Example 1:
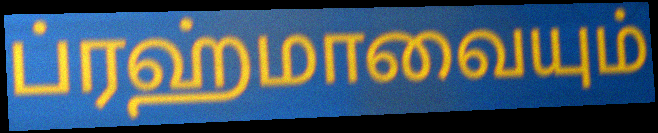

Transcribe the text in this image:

ப்ரஹ்மாவையும்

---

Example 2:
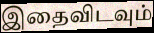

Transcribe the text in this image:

இதைவிடவும்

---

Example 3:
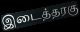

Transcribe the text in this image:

இடைத்தரகு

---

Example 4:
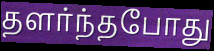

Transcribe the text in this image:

தளர்ந்தபோது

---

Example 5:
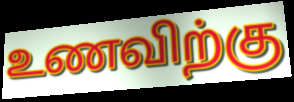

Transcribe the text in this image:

உணவிற்கு